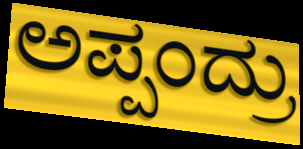
ಅಪ್ಪಂದ್ರು